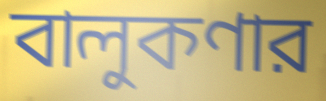
বালুকণার